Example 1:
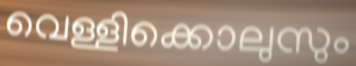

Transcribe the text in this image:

വെള്ളിക്കൊലുസും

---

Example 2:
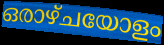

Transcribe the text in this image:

ഒരാഴ്ചയോളം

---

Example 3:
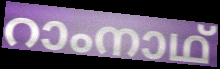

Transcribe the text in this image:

റാംനാഥ്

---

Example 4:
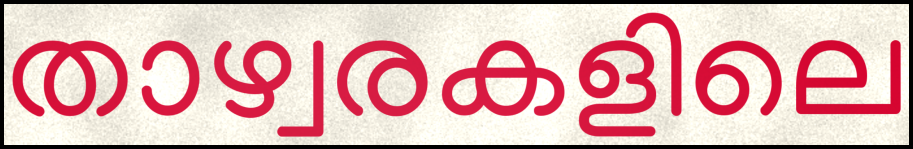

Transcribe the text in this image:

താഴ്വരകളിലെ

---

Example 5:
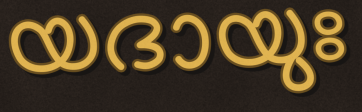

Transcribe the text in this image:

യദായുഃ